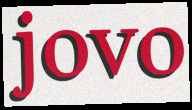
jovo